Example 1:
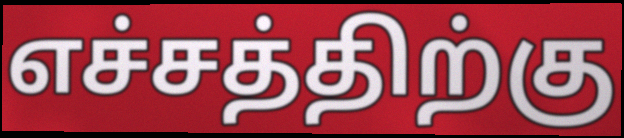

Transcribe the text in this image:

எச்சத்திற்கு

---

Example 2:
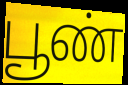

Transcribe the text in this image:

பூண்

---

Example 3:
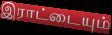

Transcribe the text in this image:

இராட்டையும்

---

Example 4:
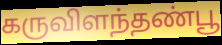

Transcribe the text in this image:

கருவிளந்தண்பூ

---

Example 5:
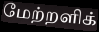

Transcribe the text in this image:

மேற்றளிக்